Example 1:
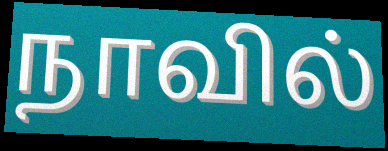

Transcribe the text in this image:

நாவில்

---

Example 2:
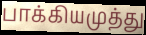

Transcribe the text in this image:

பாக்கியமுத்து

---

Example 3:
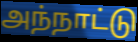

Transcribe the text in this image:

அந்நாட்டு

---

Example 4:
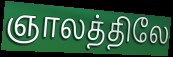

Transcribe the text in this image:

ஞாலத்திலே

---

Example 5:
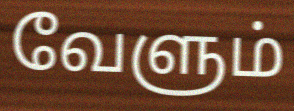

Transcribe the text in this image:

வேளும்